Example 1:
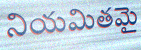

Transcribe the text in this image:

నియమితమై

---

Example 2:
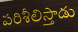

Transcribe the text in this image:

పరిశీలిస్తాడు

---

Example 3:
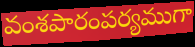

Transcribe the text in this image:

వంశపారంపర్యముగా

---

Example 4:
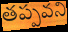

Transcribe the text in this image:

తప్పవని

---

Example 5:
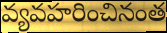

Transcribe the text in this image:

వ్యవహరించినంత